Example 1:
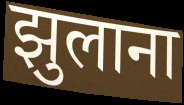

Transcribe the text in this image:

झुलाना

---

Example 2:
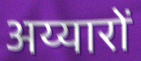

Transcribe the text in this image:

अय्यारों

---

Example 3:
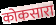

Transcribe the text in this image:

कोकसारा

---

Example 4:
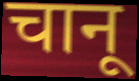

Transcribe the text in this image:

चानू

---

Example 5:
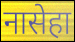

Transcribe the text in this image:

नासेहा